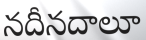
నదీనదాలూ